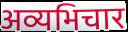
अव्यभिचार